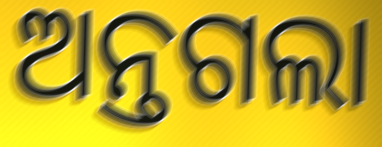
ଅନ୍ତଗଲା